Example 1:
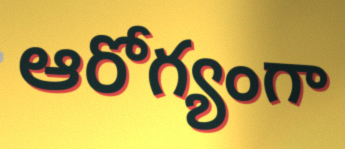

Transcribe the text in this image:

ఆరోగ్యంగా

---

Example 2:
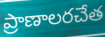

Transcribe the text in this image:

ప్రాణాలరచేత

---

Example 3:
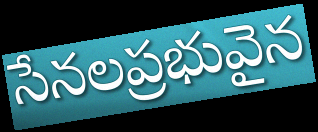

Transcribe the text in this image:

సేనలప్రభువైన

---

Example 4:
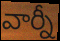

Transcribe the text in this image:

వార్నీ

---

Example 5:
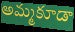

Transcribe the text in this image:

అమ్మకూడా